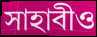
সাহাবীও